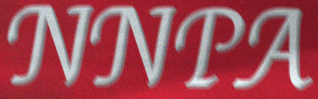
NNPA